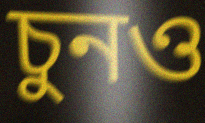
চুনও